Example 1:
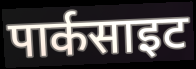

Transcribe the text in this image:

पार्कसाइट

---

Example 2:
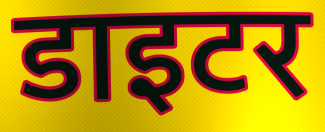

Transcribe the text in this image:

डाइटर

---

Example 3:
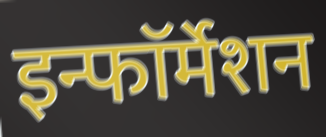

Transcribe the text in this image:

इन्फॉर्मेशन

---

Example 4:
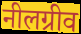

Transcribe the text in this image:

नीलग्रीव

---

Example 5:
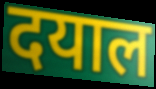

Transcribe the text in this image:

दयाल